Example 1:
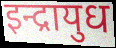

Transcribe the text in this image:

इन्द्रायुध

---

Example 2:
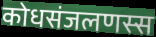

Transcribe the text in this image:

कोधसंजलणस्स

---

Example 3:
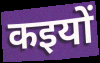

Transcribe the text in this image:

कइयों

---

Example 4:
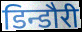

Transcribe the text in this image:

डिन्डौरी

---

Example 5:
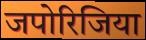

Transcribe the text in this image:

जपोरिजिया